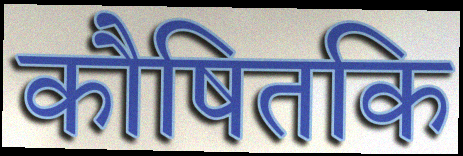
कौषितकि